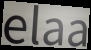
elaa